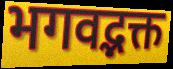
भगवद्भक्त